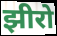
झीरो